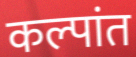
कल्पांत